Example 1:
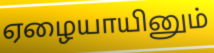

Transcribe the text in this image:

ஏழையாயினும்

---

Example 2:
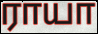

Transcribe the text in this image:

ராயா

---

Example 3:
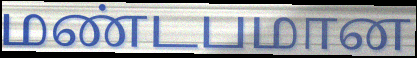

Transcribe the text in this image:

மண்டபமான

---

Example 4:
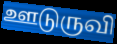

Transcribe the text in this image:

ஊடுருவி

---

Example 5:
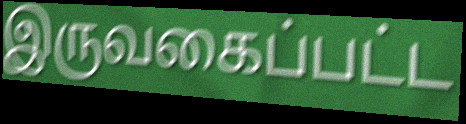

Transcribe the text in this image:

இருவகைப்பட்ட